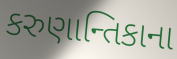
કરુણાન્તિકાના